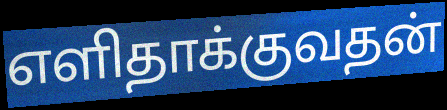
எளிதாக்குவதன்